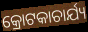
କ୍ରୋଟକାଚାର୍ଯ୍ୟ